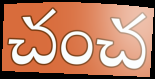
చంచ